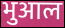
भुआल